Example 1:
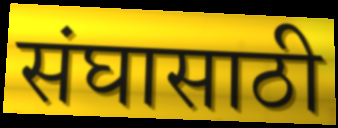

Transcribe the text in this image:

संघासाठी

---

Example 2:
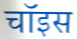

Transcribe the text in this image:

चॉइस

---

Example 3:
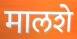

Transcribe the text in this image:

मालशे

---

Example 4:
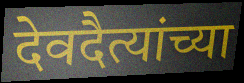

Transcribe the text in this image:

देवदैत्यांच्या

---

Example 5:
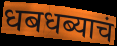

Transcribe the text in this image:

धबधब्याचं